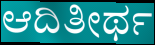
ಆದಿತೀರ್ಥ